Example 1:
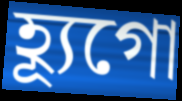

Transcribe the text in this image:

হ্যূগো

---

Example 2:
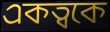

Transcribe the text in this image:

একত্বকে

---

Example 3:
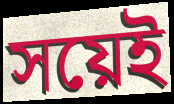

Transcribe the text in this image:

সয়েই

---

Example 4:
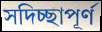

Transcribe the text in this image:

সদিচ্ছাপূর্ণ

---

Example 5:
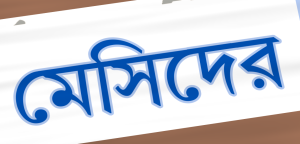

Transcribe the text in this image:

মেসিদের